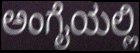
ಅಂಗೈಯಲ್ಲಿ